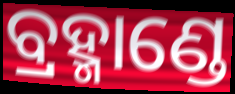
ବ୍ରହ୍ମାଣ୍ଡେ